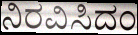
ನಿರವಿಸಿದಂ